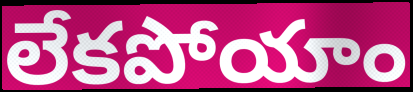
లేకపోయాం